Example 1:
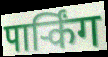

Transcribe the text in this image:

पार्र्किंग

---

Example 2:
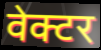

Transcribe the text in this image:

वेक्टर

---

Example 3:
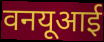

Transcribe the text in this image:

वनयूआई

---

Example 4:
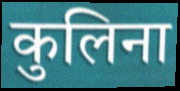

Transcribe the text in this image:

कुलिना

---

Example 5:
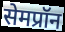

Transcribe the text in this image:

सेमप्रॉन